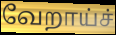
வேறாய்ச்